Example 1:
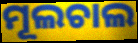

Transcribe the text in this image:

ମୂଲଚାଲ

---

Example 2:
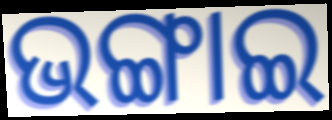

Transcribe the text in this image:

ଭଙ୍ଗାଇ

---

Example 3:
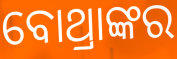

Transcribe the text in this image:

ବୋଥ୍ରାଙ୍କର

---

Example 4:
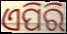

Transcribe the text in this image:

ଏପିରି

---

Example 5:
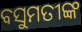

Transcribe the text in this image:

ବସୁମତୀଙ୍କ